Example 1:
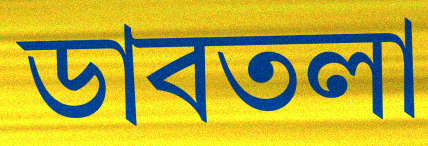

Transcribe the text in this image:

ডাবতলা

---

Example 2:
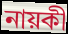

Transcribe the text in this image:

নায়কী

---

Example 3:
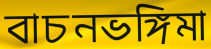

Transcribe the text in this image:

বাচনভঙ্গিমা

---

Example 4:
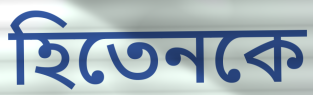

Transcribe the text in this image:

হিতেনকে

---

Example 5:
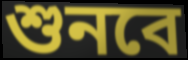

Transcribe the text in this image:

শুনবে